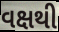
વક્ષથી